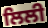
ਲਿਲੀ